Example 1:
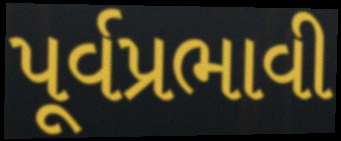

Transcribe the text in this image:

પૂર્વપ્રભાવી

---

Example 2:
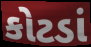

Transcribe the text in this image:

કોટડાં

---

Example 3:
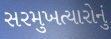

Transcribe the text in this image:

સરમુખત્યારોનું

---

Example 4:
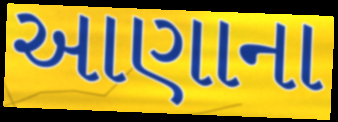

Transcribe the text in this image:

આણાના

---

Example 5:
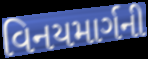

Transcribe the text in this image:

વિનયમાર્ગની